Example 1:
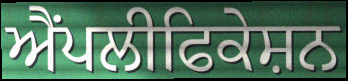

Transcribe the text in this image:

ਐਂਪਲੀਫਿਕੇਸ਼ਨ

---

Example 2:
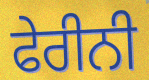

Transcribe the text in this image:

ਫੇਰੀਨੀ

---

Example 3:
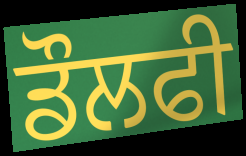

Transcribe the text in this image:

ਡੌਲਫੀ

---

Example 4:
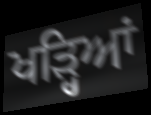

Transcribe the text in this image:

ਖੜ੍ਹਿਆਂ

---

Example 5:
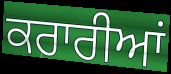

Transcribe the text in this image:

ਕਰਾਰੀਆਂ